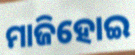
ମାଜିହୋଇ